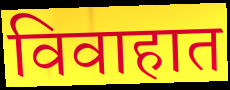
विवाहात